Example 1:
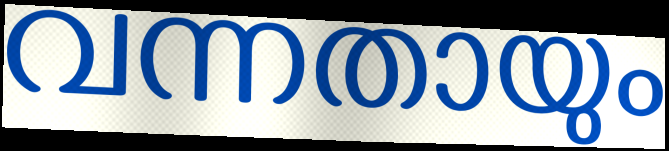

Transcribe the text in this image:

വന്നതായും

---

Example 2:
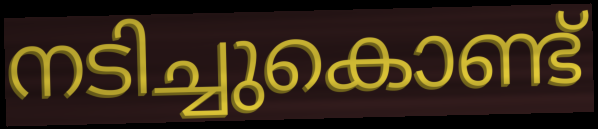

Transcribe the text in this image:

നടിച്ചുകൊണ്ട്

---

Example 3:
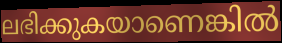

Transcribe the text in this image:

ലഭിക്കുകയാണെങ്കിൽ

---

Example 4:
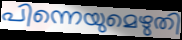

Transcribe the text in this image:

പിന്നെയുമെഴുതി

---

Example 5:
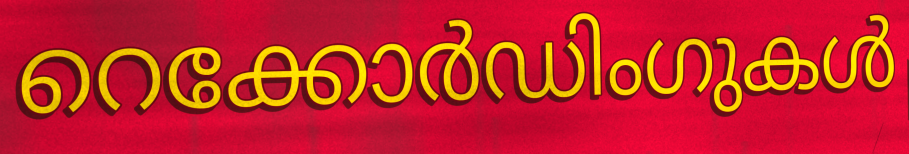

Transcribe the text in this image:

റെക്കോർഡിംഗുകൾ